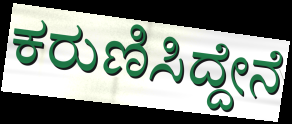
ಕರುಣಿಸಿದ್ದೇನೆ